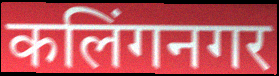
कलिंगनगर